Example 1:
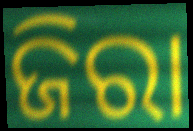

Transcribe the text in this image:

ଜିରା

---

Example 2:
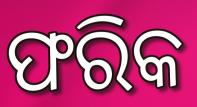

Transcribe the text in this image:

ଫରିକ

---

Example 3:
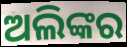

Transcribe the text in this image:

ଅଲିଙ୍କର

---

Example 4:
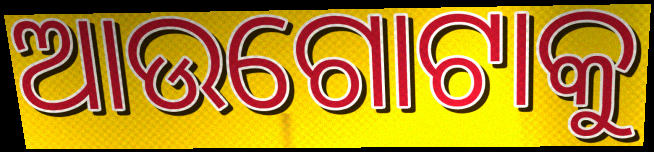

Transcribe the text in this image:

ଆଉଗୋଟାକୁ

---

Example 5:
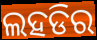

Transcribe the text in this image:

ଲହଡିର